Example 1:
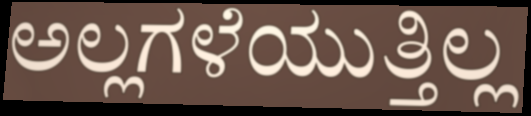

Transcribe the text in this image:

ಅಲ್ಲಗಳೆಯುತ್ತಿಲ್ಲ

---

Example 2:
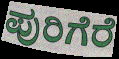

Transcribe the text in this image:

ಪುರಿಗೆರೆ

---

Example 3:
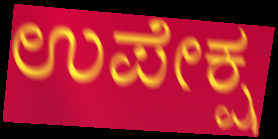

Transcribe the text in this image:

ಉಪೇಕ್ಷ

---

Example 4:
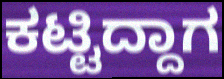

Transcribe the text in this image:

ಕಟ್ಟಿದ್ದಾಗ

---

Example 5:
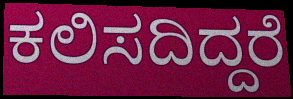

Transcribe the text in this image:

ಕಲಿಸದಿದ್ದರೆ